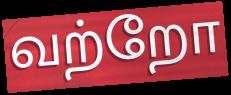
வற்றோ